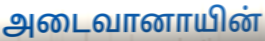
அடைவானாயின்